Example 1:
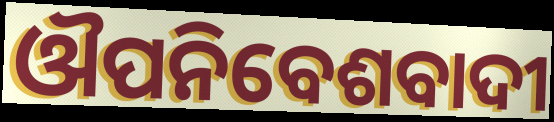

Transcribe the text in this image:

ଔପନିବେଶବାଦୀ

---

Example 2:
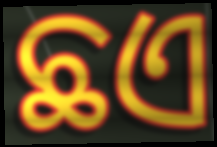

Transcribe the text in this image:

ଛଏ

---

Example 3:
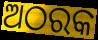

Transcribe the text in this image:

ଅଠରକ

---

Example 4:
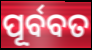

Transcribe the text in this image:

ପୂର୍ବବତ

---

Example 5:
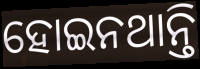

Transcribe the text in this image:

ହୋଇନଥାନ୍ତି